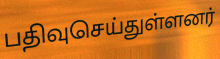
பதிவுசெய்துள்ளனர்